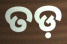
ତଡ଼